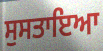
ਸੁਸਤਾਇਆ